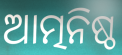
ଆତ୍ମନିଷ୍ଠ